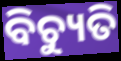
ବିଚ୍ୟୁତି